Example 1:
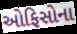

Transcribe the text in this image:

ઓફિસોના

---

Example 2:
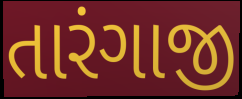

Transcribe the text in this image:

તારંગાજી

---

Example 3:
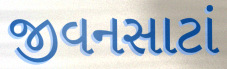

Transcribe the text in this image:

જીવનસાટાં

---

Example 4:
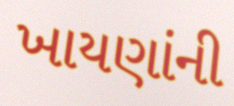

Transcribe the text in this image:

ખાયણાંની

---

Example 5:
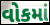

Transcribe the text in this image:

વોકમાં